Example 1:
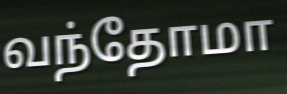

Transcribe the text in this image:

வந்தோமா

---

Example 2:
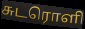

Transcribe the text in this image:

சுடரொளி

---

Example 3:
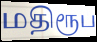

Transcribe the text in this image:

மதிரூப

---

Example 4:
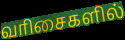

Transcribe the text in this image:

வரிசைகளில்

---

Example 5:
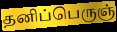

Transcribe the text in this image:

தனிப்பெருஞ்